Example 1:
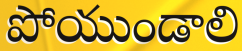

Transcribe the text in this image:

పోయుండాలి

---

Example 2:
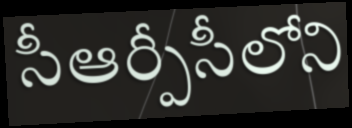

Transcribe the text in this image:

సీఆర్పీసీలోని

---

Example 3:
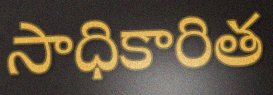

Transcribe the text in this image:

సాధికారిత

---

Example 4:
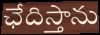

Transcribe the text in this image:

ఛేదిస్తాను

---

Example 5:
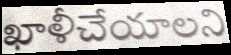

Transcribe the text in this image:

ఖాళీచేయాలని